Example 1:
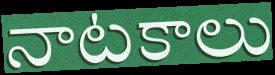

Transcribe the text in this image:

నాటకాలు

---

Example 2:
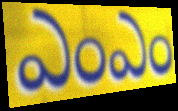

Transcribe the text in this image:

ఎంఎం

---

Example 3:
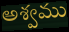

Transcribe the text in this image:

అశ్వము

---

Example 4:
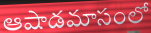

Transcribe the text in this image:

ఆషాడమాసంలో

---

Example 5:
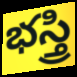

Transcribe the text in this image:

భస్త్రి